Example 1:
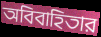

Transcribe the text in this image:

অবিবাহিতার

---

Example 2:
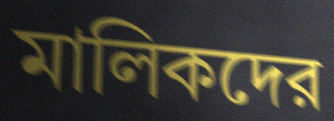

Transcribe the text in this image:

মালিকদের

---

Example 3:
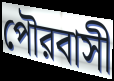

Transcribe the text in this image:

পৌরবাসী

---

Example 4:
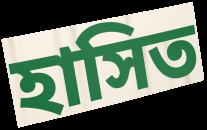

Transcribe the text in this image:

হাসিত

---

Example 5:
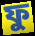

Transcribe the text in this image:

ফু